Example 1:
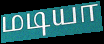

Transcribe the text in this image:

மடியா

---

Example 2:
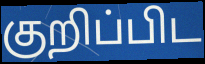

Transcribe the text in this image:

குறிப்பிட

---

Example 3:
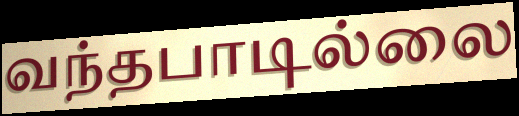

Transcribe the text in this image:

வந்தபாடில்லை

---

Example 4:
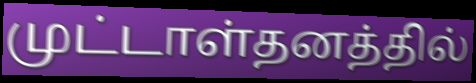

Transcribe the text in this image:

முட்டாள்தனத்தில்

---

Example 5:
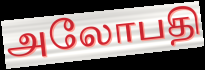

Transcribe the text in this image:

அலோபதி